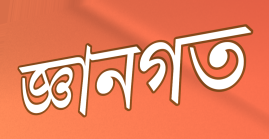
জ্ঞানগত